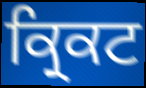
ਕ੍ਰਿਕਟ